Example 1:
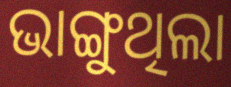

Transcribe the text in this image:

ଭାଙ୍ଗୁଥିଲା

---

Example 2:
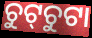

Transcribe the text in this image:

ଚୁଟ୍‌ଚୁଟା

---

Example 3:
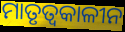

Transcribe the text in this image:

ମାତୃତ୍ୱକାଳୀନ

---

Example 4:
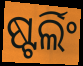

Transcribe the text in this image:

ଷ୍ଟର୍ଲିଂ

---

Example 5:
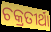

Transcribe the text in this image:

ଚକ୍ରତୀର୍ଥା